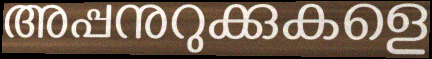
അപ്പനുറുക്കുകളെ